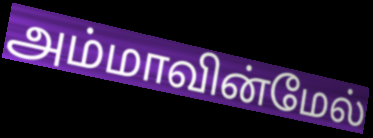
அம்மாவின்மேல்